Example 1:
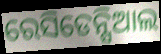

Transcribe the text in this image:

ରେସିଡେନ୍ସିଆଲ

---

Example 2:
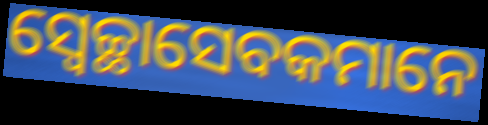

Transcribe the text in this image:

ସ୍ୱେଚ୍ଛାସେବକମାନେ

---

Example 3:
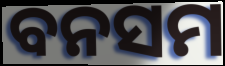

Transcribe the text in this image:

ବନସମ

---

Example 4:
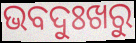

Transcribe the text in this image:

ଭବଦୁଃଖରୁ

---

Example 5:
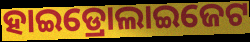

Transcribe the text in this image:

ହାଇଡ୍ରୋଲାଇଜେଟ